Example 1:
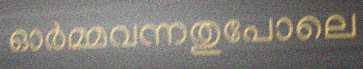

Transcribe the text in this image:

ഓർമ്മവന്നതുപോലെ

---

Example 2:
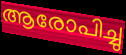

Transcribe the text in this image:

ആരോപിച്ചു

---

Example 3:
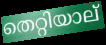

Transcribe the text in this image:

തെറ്റിയാല്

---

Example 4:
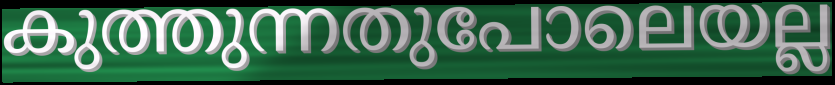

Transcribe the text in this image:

കുത്തുന്നതുപോലെയല്ല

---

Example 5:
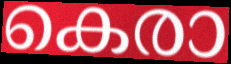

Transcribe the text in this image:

കെരാ